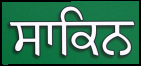
ਸਾਕਿਨ